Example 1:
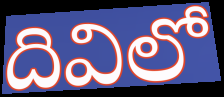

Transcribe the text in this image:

దివిలో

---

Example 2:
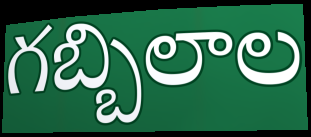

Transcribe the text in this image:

గబ్బిలాల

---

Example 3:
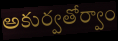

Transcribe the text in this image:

అకుర్వతోర్వాం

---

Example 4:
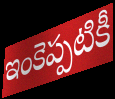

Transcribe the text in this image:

ఇంకెప్పటికీ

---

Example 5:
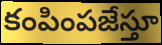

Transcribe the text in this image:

కంపింపజేస్తూ